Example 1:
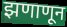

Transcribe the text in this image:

झणाणून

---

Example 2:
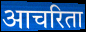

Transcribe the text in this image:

आचरिता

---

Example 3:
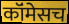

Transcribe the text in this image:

कॉंमेसच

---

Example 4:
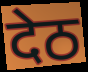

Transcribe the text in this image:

देठ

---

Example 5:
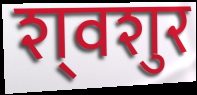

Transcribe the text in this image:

श्वशुर